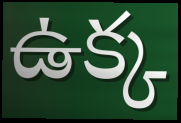
ఉక్క